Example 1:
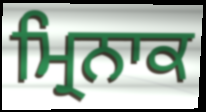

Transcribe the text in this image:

ਮ੍ਰਿਨਾਕ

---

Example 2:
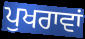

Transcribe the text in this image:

ਪੁਖਰਾਵਾਂ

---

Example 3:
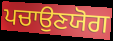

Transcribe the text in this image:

ਪਚਾਉਣਯੋਗ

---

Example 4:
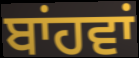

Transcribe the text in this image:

ਬਾਂਹਵਾਂ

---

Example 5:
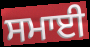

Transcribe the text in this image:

ਸਮਾਈ